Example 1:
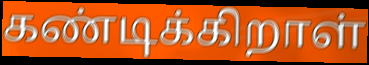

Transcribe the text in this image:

கண்டிக்கிறாள்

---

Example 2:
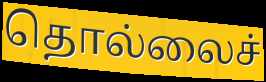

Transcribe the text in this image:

தொல்லைச்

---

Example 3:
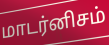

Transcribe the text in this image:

மாடர்னிசம்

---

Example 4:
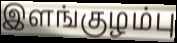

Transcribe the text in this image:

இளங்குழம்பு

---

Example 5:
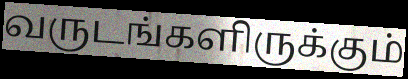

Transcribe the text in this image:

வருடங்களிருக்கும்